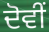
ਦੋਵੀਂ